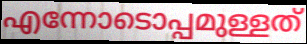
എന്നോടൊപ്പമുള്ളത്